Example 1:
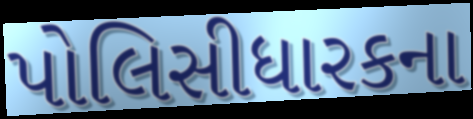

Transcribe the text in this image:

પોલિસીધારકના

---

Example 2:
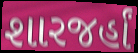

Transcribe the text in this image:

શારજર્હાં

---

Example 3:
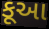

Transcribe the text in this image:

કૂઆ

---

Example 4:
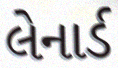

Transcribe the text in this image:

લેનાર્ડ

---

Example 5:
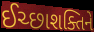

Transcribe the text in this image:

ઈચ્છાશક્તિને